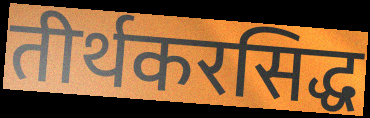
तीर्थकरसिद्ध